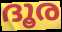
ദൂര